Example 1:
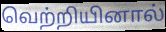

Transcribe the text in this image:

வெற்றியினால்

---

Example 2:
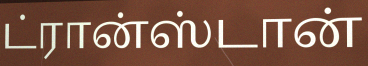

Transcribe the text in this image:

ட்ரான்ஸ்டான்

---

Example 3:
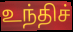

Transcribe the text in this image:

உந்திச்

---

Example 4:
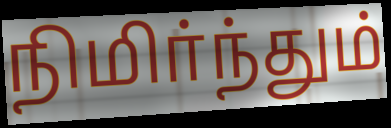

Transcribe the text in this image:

நிமிர்ந்தும்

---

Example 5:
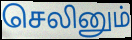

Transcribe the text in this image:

செலினும்